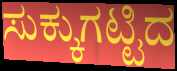
ಸುಕ್ಕುಗಟ್ಟಿದ